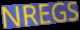
NREGS